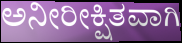
ಅನೀರೀಕ್ಷಿತವಾಗಿ